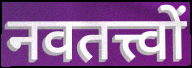
नवतत्त्वों